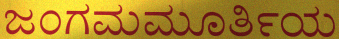
ಜಂಗಮಮೂರ್ತಿಯ